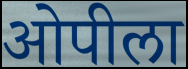
ओपीला